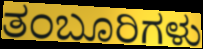
ತಂಬೂರಿಗಳು